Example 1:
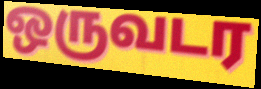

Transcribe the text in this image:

ஒருவடர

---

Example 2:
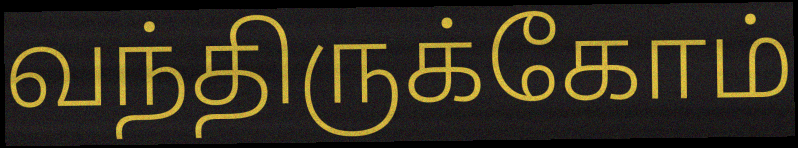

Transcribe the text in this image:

வந்திருக்கோம்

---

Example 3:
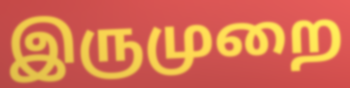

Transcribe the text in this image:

இருமுறை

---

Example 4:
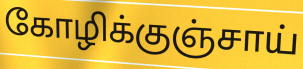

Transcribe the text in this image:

கோழிக்குஞ்சாய்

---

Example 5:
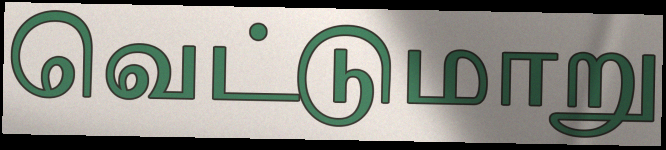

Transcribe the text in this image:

வெட்டுமாறு